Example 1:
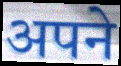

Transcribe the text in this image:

अपने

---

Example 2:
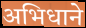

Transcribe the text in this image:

अभिधाने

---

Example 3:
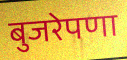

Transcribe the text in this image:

बुजरेपणा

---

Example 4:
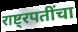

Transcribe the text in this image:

राष्ट्रपतींचा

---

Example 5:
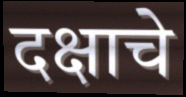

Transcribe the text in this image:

दक्षाचे